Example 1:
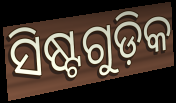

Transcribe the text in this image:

ସିଷ୍ଟଗୁଡ଼ିକ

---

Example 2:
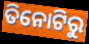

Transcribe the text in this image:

ତିନୋଟିରୁ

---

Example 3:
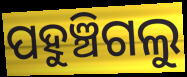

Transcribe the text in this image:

ପହୁଞ୍ଚିଗଲୁ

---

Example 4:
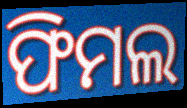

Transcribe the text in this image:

ଫିମଲ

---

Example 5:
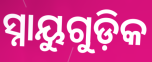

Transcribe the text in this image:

ସ୍ନାୟୁଗୁଡ଼ିକ